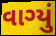
વાગ્યું